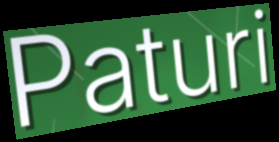
Paturi